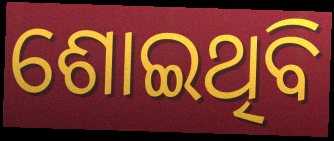
ଶୋଇଥିବି